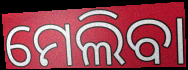
ମେଲିବା